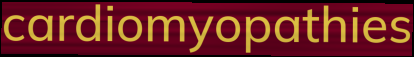
cardiomyopathies